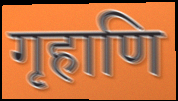
गृहाणि